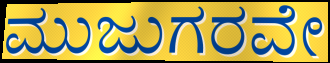
ಮುಜುಗರವೇ